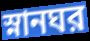
স্নানঘর